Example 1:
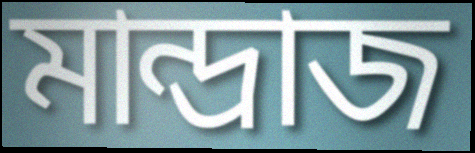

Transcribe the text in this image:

মান্দ্রাজ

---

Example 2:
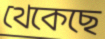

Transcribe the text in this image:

থেকেছে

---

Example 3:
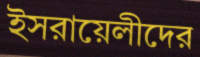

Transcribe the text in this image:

ইসরায়েলীদের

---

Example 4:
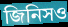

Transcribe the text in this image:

জিনিসও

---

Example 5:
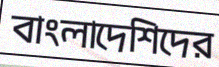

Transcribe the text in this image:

বাংলাদেশিদের